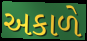
અકાળે